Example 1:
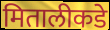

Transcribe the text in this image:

मितालीकडे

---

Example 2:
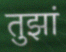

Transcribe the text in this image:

तुझां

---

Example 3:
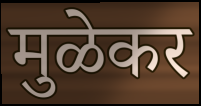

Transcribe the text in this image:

मुळेकर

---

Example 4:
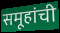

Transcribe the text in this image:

समूहांची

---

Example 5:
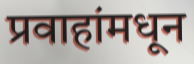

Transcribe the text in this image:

प्रवाहांमधून